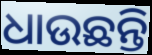
ଧାଉଛନ୍ତି